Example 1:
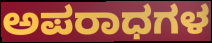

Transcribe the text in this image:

ಅಪರಾಧಗಳ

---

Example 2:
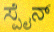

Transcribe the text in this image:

ಸ್ಪೈನ್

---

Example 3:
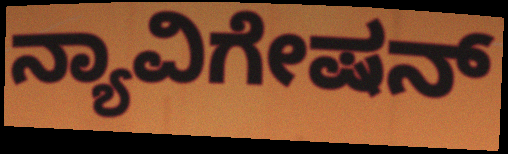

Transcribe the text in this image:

ನ್ಯಾವಿಗೇಷನ್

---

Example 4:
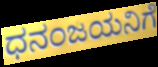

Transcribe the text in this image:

ಧನಂಜಯನಿಗೆ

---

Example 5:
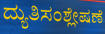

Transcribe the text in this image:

ದ್ಯುತಿಸಂಶ್ಲೇಷಣೆ